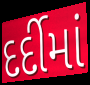
દર્દીમાં